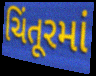
ચિંતૂરમાં